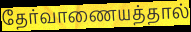
தேர்வாணையத்தால்